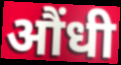
औंधी